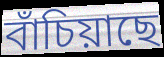
বাঁচিয়াছে